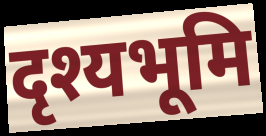
दृश्यभूमि